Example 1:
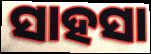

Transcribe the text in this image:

ସାହସା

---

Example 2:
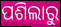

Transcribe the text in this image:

ପଶିଲାରୁ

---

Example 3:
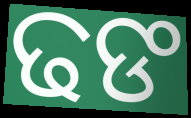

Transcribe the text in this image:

ଢଙ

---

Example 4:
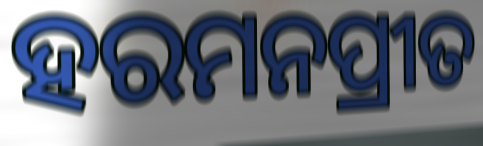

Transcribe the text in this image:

ହରମନପ୍ରୀତ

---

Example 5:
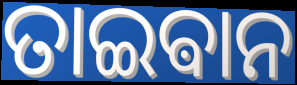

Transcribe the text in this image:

ତାଇଵାନ